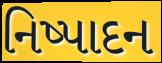
નિષ્પાદન